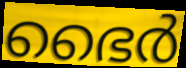
ഭൈർ